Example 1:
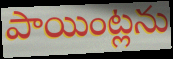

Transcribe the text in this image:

పాయింట్లను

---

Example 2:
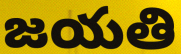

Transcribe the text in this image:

జయతి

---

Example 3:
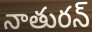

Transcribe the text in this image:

నాతురన్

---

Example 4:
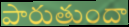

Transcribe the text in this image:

పారుతుందా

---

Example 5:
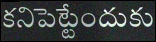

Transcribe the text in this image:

కనిపెట్టేందుకు